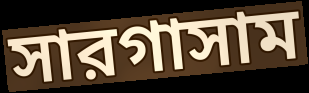
সারগাসাম